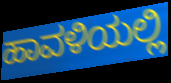
ಹಾವಳಿಯಲ್ಲಿ